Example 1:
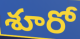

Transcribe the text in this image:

శూరో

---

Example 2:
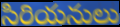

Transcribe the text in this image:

సిరియనులు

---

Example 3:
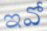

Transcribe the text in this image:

ఇవో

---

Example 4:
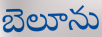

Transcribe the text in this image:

బెలూను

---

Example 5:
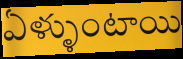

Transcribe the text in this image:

ఏళ్ళుంటాయి